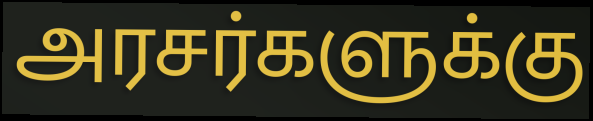
அரசர்களுக்கு